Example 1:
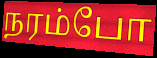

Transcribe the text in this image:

நரம்போ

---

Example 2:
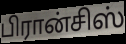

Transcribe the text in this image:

பிரான்சிஸ்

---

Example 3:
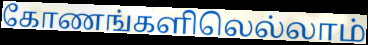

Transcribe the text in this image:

கோணங்களிலெல்லாம்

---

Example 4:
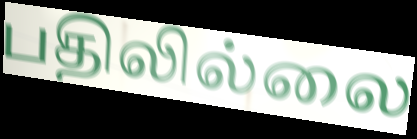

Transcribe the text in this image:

பதிலில்லை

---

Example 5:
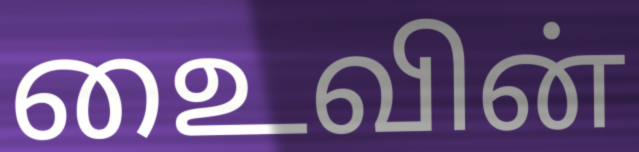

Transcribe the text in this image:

உைவின்